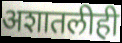
अशातलीही